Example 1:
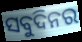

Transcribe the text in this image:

ସବୁଦିନର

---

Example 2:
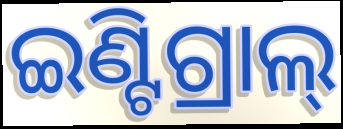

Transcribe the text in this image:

ଇଣ୍ଟିଗ୍ରାଲ୍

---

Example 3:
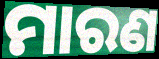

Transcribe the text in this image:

ମାରଣ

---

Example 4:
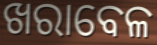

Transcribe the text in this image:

ଖରାବେଳ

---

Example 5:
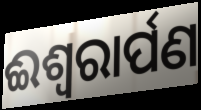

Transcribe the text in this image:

ଈଶ୍ୱରାର୍ପଣ